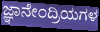
ಜ್ಞಾನೇಂದ್ರಿಯಗಳ